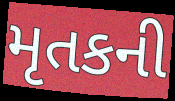
મૃતકની